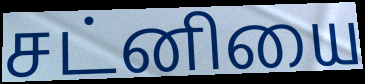
சட்னியை